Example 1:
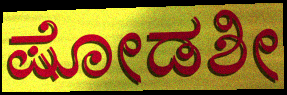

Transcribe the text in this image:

ಷೋಡಶೀ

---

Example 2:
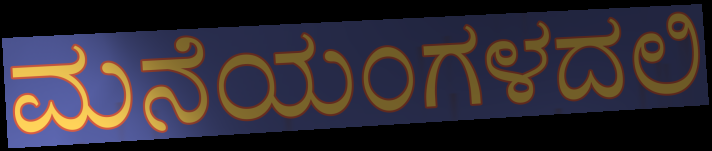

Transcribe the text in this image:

ಮನೆಯಂಗಳದಲಿ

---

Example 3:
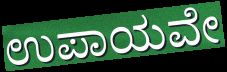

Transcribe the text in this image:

ಉಪಾಯವೇ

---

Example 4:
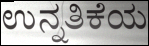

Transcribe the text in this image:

ಉನ್ನತಿಕೆಯ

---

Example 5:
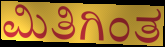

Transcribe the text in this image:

ಮಿತಿಗಿಂತ